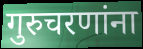
गुरुचरणांना